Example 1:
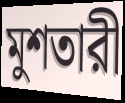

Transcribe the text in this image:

মুশতারী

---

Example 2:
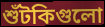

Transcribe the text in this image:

শুঁটকিগুলো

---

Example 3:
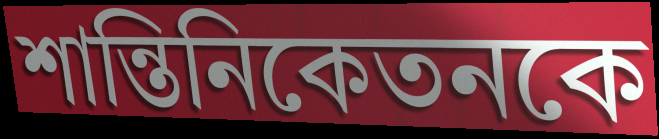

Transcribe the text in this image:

শান্তিনিকেতনকে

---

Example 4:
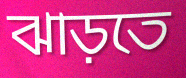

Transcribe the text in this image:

ঝাড়তে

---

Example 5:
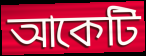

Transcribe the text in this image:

আকেটি